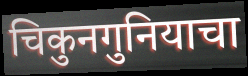
चिकुनगुनियाचा